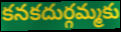
కనకదుర్గమ్మకు